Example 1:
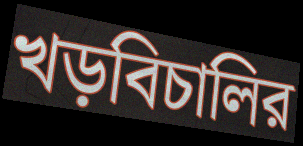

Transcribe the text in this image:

খড়বিচালির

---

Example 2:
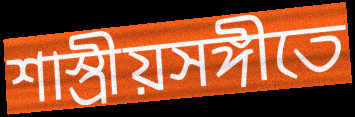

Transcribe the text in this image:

শাস্ত্রীয়সঙ্গীতে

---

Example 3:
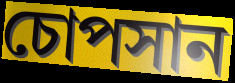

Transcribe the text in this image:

চোপসান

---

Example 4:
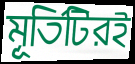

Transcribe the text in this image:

মূর্তিটিরই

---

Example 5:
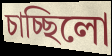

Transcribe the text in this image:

চাচ্ছিলো